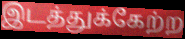
இடத்துக்கேற்ற